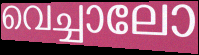
വെച്ചാലോ